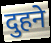
दुहने